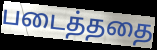
படைத்ததை